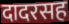
दादरसह